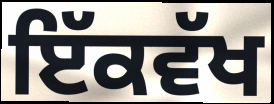
ਇੱਕਵੱਖ